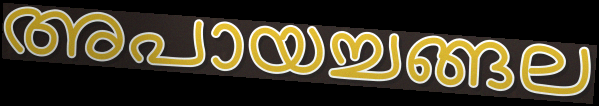
അപായച്ചങ്ങല